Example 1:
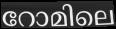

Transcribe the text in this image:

റോമിലെ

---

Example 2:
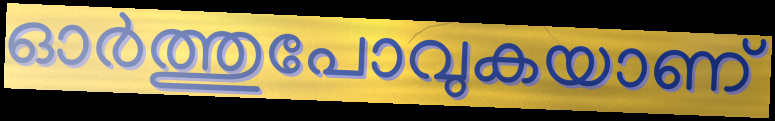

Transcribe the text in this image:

ഓർത്തുപോവുകയാണ്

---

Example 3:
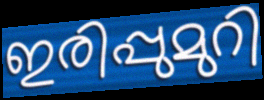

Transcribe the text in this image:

ഇരിപ്പുമുറി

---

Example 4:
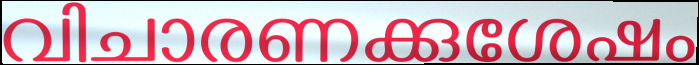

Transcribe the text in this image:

വിചാരണക്കുശേഷം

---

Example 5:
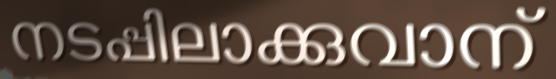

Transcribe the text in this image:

നടപ്പിലാക്കുവാന്